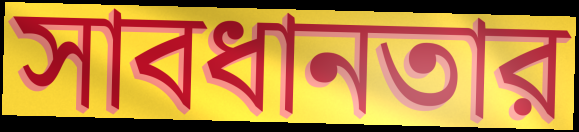
সাবধানতার